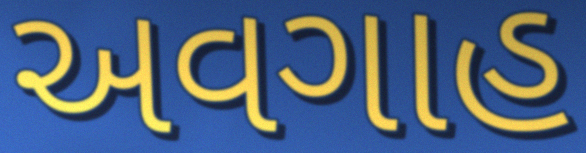
અવગાહ